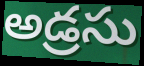
అడ్రసు